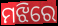
ମଝିରେ